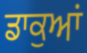
ਡਾਕੁਆਂ